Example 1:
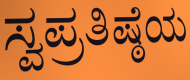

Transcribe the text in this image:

ಸ್ವಪ್ರತಿಷ್ಠೆಯ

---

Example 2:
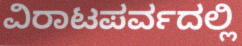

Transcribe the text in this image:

ವಿರಾಟಪರ್ವದಲ್ಲಿ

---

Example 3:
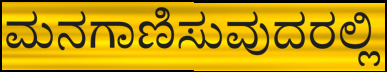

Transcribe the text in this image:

ಮನಗಾಣಿಸುವುದರಲ್ಲಿ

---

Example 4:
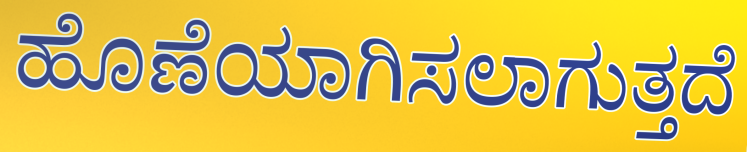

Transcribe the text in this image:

ಹೊಣೆಯಾಗಿಸಲಾಗುತ್ತದೆ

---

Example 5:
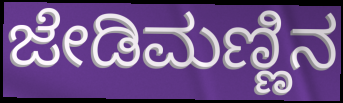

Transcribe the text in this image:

ಜೇಡಿಮಣ್ಣಿನ